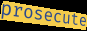
prosecute